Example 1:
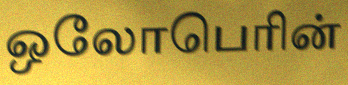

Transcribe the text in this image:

ஒலோபெரின்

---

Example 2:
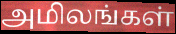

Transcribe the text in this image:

அமிலங்கள்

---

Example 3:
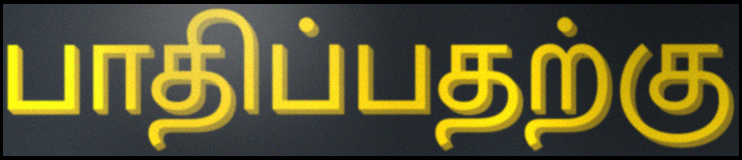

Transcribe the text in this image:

பாதிப்பதற்கு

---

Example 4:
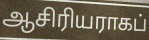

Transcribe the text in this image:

ஆசிரியராகப்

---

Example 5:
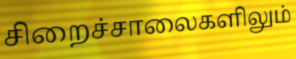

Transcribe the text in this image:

சிறைச்சாலைகளிலும்